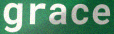
grace